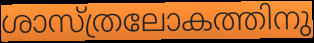
ശാസ്ത്രലോകത്തിനു